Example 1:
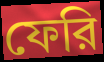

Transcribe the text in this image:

ফেরি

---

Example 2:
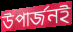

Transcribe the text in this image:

উপার্জনই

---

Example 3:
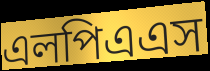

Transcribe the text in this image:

এলপিএএস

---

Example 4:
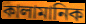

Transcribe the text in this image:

কালামানিক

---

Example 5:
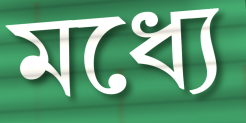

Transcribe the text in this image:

মধ্যে